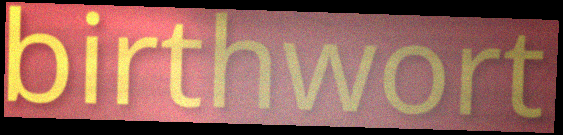
birthwort